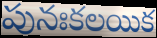
పునఃకలయిక